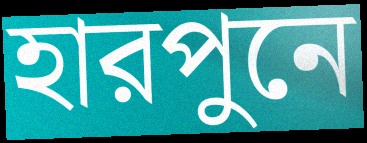
হারপুনে